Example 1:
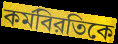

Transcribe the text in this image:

কর্মবিরতিকে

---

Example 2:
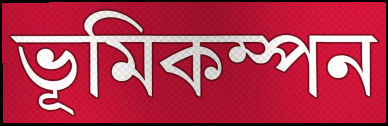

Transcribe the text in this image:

ভূমিকম্পন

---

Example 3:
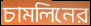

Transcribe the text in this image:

চামলিনের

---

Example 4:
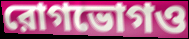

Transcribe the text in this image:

রোগভোগও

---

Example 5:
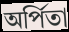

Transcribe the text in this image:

অর্পিতা